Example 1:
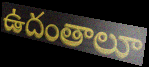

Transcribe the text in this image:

ఉదంతాలూ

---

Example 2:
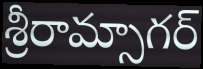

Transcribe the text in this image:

శ్రీరామ్సాగర్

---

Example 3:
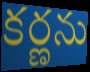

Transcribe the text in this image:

కర్ణను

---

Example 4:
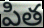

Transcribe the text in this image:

పిత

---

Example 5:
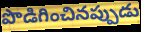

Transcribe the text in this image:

పొడిగించినప్పుడు